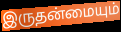
இருதன்மையும்